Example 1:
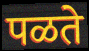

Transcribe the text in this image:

पळते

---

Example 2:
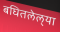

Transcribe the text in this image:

बघितलेल्या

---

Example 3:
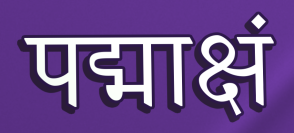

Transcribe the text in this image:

पद्माक्षं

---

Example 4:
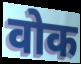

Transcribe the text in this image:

वोक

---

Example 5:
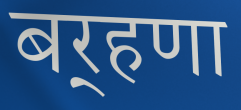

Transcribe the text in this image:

बर्हणा